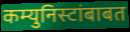
कम्युनिस्टांबाबत